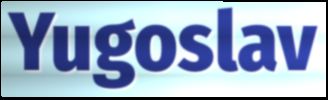
Yugoslav